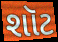
શૉટ